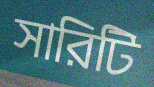
সারিটি